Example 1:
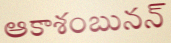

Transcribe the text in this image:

ఆకాశంబునన్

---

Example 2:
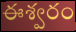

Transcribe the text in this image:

ఈశ్వరం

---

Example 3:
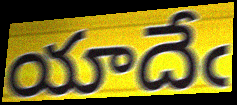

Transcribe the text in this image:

యాదేఁ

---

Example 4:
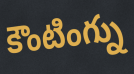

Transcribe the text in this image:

కౌంటింగ్ను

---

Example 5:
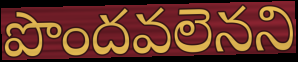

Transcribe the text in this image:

పొందవలెనని